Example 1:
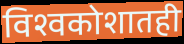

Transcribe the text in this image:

विश्वकोशातही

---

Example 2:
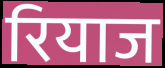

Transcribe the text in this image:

रियाज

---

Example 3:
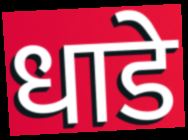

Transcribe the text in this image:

धाडे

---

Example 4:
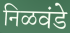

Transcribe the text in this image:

निळवंडे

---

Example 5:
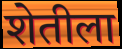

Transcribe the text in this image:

शेतीला